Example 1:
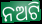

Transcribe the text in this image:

ନଅଟି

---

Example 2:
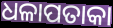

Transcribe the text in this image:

ଧଳାପତାକା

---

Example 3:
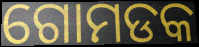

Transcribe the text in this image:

ଗୋମଡକ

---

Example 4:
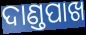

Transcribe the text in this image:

ଦାଣ୍ଡପାଖ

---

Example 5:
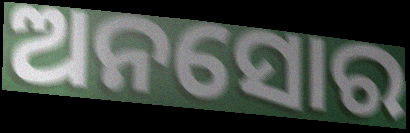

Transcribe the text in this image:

ଅନସୋର